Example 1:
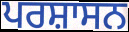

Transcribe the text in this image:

ਪਰਸ਼ਾਸਨ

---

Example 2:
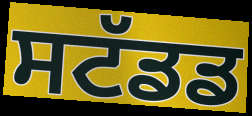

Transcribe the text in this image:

ਸਟੱਡਡ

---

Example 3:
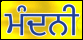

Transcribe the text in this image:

ਮੰਦਨੀ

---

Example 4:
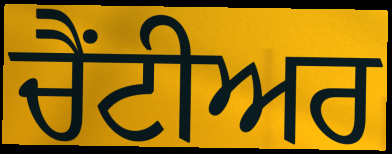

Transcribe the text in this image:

ਚੈਂਟੀਅਰ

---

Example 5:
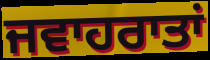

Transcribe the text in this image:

ਜਵਾਹਰਾਤਾਂ